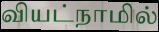
வியட்நாமில்